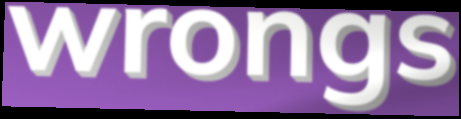
wrongs